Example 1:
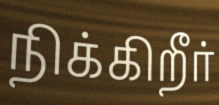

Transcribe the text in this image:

நிக்கிறீர்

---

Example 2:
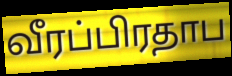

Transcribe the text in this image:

வீரப்பிரதாப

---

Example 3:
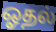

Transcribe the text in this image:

ஓதல்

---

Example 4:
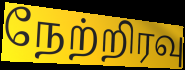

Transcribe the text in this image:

நேற்றிரவு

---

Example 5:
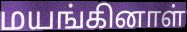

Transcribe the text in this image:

மயங்கினாள்